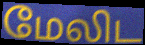
மேலிட